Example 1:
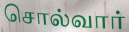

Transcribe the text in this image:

சொல்வார்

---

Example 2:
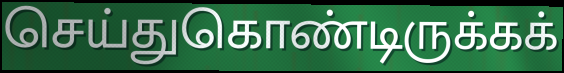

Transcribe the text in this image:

செய்துகொண்டிருக்கக்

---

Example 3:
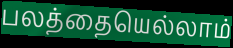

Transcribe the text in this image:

பலத்தையெல்லாம்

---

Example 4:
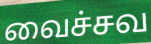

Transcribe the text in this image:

வைச்சவ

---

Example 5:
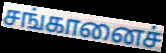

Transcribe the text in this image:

சங்கானைச்